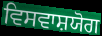
ਵਿਸਵਾਸ਼ਯੋਗ